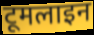
टूमलाइन